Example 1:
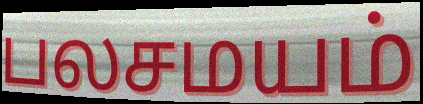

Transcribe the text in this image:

பலசமயம்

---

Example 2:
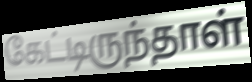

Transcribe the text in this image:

கேட்டிருந்தாள்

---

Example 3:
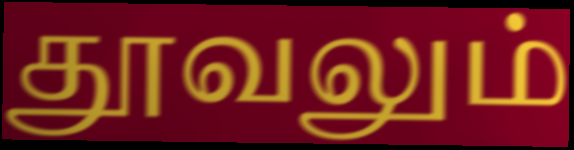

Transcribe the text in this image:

தூவலும்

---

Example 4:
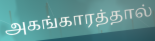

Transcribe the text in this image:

அகங்காரத்தால்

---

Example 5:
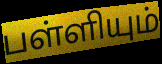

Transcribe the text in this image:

பள்ளியும்